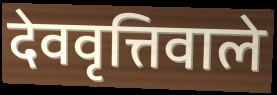
देववृत्तिवाले